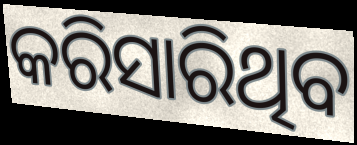
କରିସାରିଥିବ